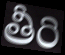
తీరి